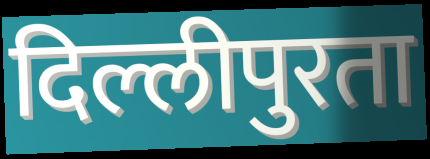
दिल्लीपुरता